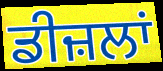
ਡੀਜ਼ਲਾਂ